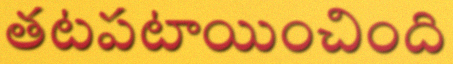
తటపటాయించింది